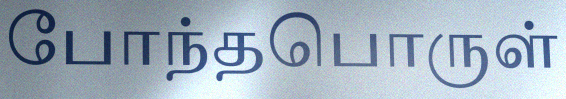
போந்தபொருள்